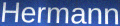
Hermann